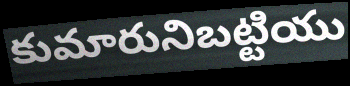
కుమారునిబట్టియు